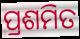
ପ୍ରଶମିତ